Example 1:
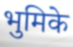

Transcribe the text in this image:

भुमिके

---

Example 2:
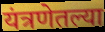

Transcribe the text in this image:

यंत्रणेतल्या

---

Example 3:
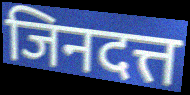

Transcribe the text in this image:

जिनदत्त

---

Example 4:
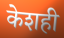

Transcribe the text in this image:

केशही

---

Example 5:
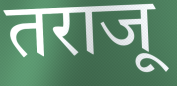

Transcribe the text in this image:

तराजू